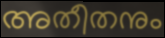
അതീതനും